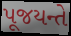
પૂજયન્તે